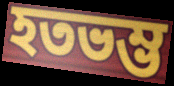
হতভম্ভ